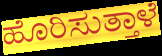
ಹೊರಿಸುತ್ತಾಳೆ